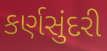
કર્ણસુંદરી